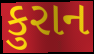
કુરાન